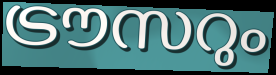
ട്രൗസറും